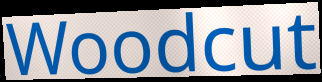
Woodcut